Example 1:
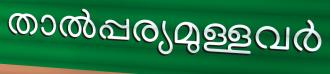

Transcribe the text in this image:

താൽപ്പര്യമുള്ളവർ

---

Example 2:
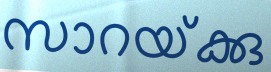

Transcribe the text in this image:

സാറയ്‌ക്കു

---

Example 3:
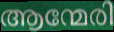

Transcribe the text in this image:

ആന്മേരി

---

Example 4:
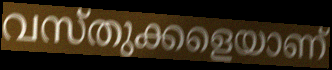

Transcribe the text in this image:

വസ്തുക്കളെയാണ്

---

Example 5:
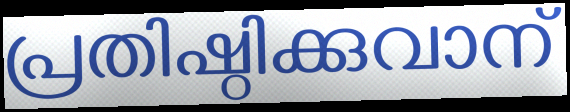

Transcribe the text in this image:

പ്രതിഷ്ഠിക്കുവാന്